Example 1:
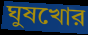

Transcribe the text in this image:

ঘুষখোর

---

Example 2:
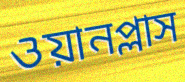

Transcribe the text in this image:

ওয়ানপ্লাস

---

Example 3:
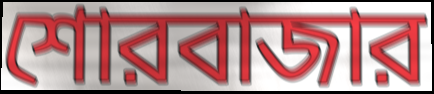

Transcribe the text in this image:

শোরবাজার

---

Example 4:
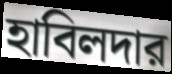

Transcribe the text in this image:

হাবিলদার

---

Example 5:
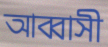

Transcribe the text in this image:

আব্বাসী